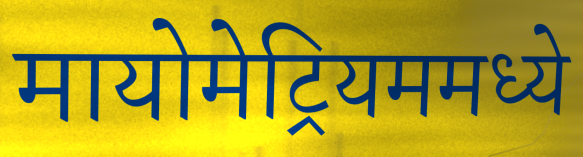
मायोमेट्रियममध्ये